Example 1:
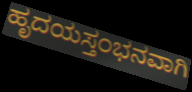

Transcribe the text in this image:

ಹೃದಯಸ್ತಂಭನವಾಗಿ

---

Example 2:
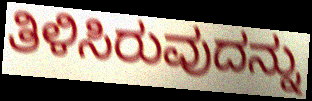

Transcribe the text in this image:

ತಿಳಿಸಿರುವುದನ್ನು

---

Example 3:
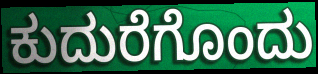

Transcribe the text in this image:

ಕುದುರೆಗೊಂದು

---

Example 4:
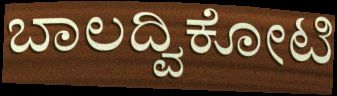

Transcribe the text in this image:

ಬಾಲದ್ವಿಕೋಟಿ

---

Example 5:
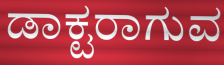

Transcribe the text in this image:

ಡಾಕ್ಟರಾಗುವ